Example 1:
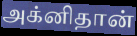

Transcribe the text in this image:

அக்னிதான்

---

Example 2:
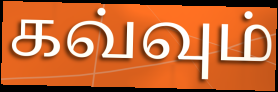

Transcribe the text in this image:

கவ்வும்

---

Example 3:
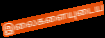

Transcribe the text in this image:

இலைகளையுடைய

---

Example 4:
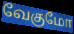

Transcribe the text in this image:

வேகுமோ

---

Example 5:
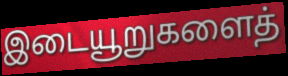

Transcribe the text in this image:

இடையூறுகளைத்